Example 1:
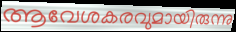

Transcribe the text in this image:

ആവേശകരവുമായിരുന്നു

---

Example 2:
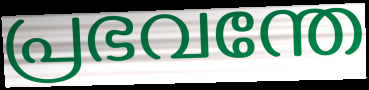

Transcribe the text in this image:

പ്രഭവന്തേ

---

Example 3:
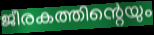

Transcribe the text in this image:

ജീരകത്തിന്റെയും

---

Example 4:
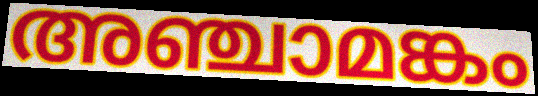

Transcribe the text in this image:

അഞ്ചാമങ്കം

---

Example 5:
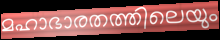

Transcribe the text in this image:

മഹാഭാരതത്തിലെയും